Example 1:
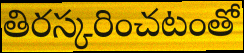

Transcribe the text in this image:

తిరస్కరించటంతో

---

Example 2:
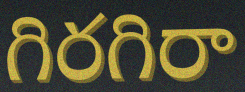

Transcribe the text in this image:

గిరగిరా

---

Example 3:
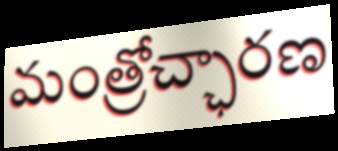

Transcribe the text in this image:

మంత్రోచ్ఛారణ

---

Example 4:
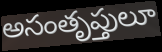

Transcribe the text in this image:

అసంతృప్తులూ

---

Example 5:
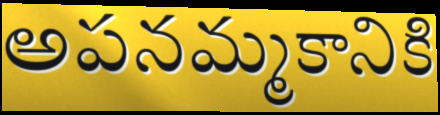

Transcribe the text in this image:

అపనమ్మకానికి